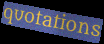
quotations